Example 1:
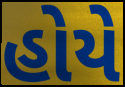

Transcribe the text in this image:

હોયે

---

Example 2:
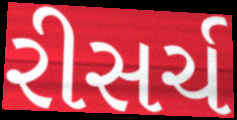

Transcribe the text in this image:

રીસર્ચ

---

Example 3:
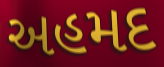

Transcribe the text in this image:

અહમદ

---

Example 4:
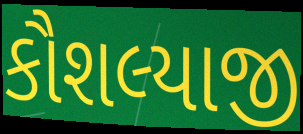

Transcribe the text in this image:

કૌશલ્યાજી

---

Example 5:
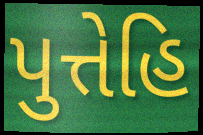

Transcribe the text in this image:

પુત્તેહિ